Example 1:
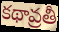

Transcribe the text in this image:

కథావ్రతీ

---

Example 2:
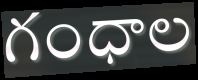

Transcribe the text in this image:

గంధాల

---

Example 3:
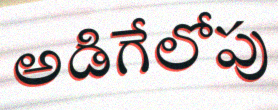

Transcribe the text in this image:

అడిగేలోపు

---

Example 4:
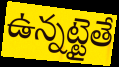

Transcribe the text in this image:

ఉన్నట్టైతే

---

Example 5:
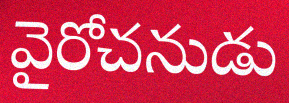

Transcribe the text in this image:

వైరోచనుడు